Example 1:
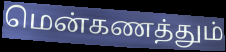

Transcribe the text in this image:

மென்கணத்தும்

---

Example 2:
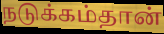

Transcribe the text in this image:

நடுக்கம்தான்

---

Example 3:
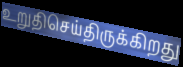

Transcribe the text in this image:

உறுதிசெய்திருக்கிறது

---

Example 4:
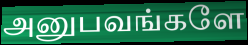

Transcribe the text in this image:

அனுபவங்களே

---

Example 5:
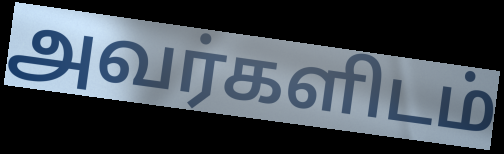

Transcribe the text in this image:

அவர்களிடம்